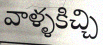
వాళ్ళకిచ్చి